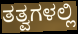
ತತ್ವಗಳಲ್ಲಿ